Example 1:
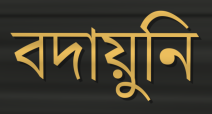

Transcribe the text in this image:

বদায়ুনি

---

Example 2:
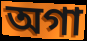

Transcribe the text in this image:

অগা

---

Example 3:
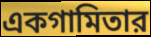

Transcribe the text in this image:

একগামিতার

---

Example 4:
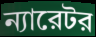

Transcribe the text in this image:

ন্যারেটর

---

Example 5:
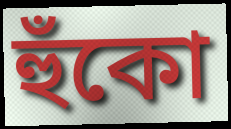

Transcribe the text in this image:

হুঁকো